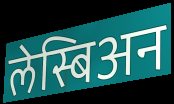
लेस्बिअन